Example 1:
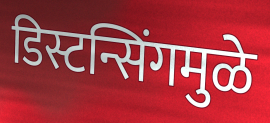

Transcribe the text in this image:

डिस्टन्सिंगमुळे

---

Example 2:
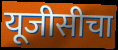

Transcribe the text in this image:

यूजीसीचा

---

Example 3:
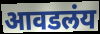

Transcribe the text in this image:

आवडलंय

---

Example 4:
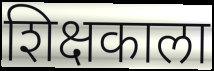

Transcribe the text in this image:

शिक्षकाला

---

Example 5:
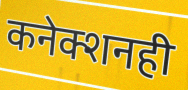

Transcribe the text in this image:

कनेक्शनही